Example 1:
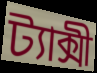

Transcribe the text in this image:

ট্যাক্সী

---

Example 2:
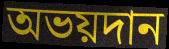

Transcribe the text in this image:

অভয়দান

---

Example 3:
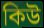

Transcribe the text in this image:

কিউ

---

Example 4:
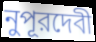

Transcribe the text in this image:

নুপূরদেবী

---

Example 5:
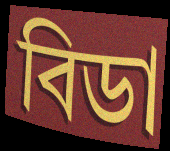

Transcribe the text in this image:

বিডা